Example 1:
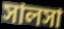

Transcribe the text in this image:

সালসা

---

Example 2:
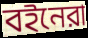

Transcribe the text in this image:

বইনেরা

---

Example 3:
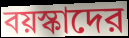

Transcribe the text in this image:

বয়স্কাদের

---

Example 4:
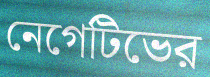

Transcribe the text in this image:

নেগেটিভের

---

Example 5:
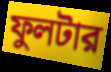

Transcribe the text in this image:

ফুলটার